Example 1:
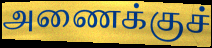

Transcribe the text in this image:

அணைக்குச்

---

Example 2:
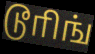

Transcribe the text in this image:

டூரிங்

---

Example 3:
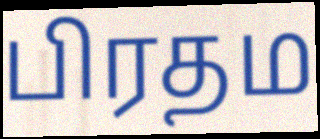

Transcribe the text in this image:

பிரதம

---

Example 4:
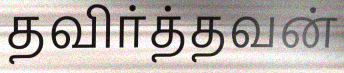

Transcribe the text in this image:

தவிர்த்தவன்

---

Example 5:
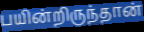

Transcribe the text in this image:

பயின்றிருந்தான்